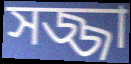
সজ্জা